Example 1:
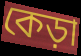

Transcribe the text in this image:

কেড়া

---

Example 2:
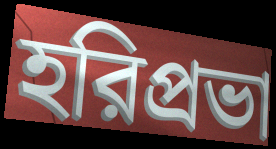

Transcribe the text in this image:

হরিপ্রভা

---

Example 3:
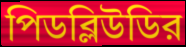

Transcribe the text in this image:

পিডব্লিউডির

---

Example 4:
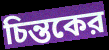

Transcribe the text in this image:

চিন্তকের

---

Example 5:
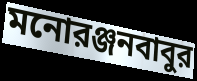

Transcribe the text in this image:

মনোরঞ্জনবাবুর